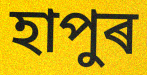
হাপুৰ